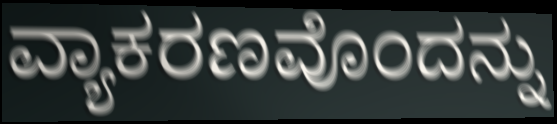
ವ್ಯಾಕರಣವೊಂದನ್ನು